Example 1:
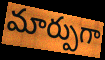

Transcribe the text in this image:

మార్పుగా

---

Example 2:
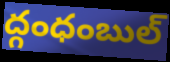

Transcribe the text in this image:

ద్గంధంబుల్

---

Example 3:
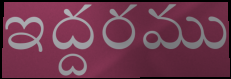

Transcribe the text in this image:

ఇద్దరము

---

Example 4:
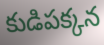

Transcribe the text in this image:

కుడిపక్కన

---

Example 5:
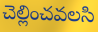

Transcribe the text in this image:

చెల్లించవలసి